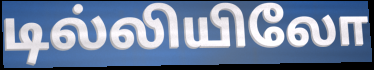
டில்லியிலோ